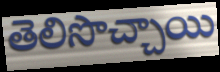
తెలిసొచ్చాయి